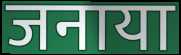
जनाया